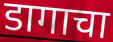
डागाचा